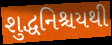
શુદ્ધનિશ્ચયથી